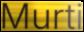
Murti